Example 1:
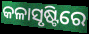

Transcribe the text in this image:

କଳାସୃଷ୍ଟିରେ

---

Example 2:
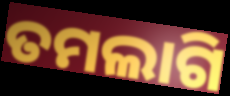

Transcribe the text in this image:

ତମଲାଗି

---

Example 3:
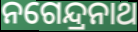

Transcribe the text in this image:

ନଗେନ୍ଦ୍ରନାଥ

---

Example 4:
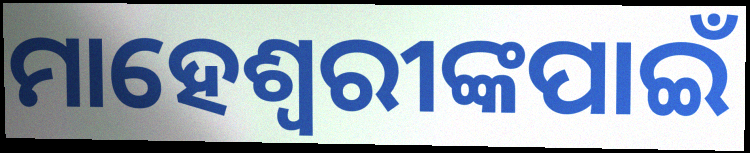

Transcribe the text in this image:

ମାହେଶ୍ୱରୀଙ୍କପାଇଁ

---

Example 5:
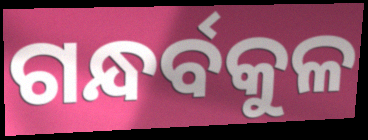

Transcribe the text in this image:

ଗନ୍ଧର୍ବକୁଳ